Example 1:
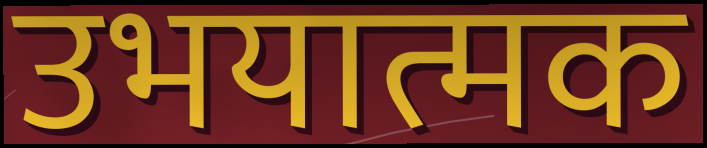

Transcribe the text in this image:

उभयात्मक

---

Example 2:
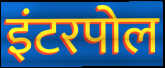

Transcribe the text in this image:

इंटरपोल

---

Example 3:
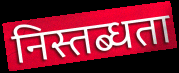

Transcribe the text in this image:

निस्तब्धता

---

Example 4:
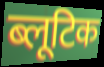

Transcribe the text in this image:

ब्लूटिक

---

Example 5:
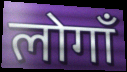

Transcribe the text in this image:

लोगाँ